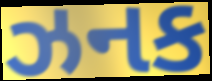
ઝનક